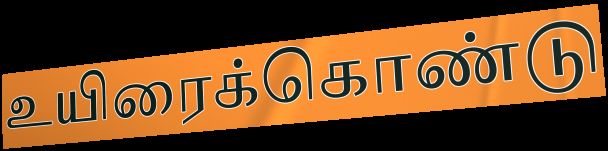
உயிரைக்கொண்டு